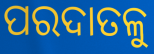
ପରଦାତଳୁ